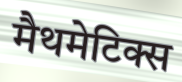
मैथमेटिक्स